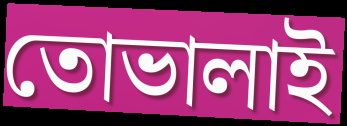
তোভালাই